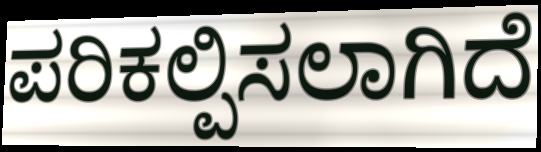
ಪರಿಕಲ್ಪಿಸಲಾಗಿದೆ